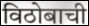
विठोबाची